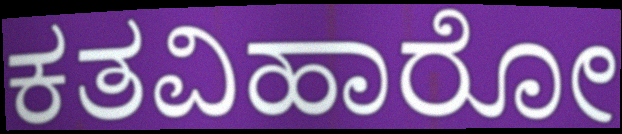
ಕತವಿಹಾರೋ